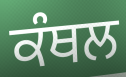
ਕੰਥਲ